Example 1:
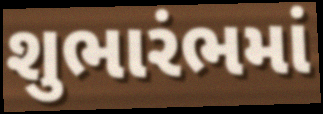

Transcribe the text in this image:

શુભારંભમાં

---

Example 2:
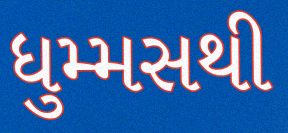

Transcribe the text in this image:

ધુમ્મસથી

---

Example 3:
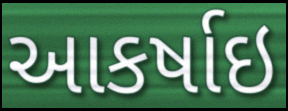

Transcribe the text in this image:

આકર્ષાઇ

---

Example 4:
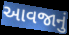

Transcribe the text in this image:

આવજાનું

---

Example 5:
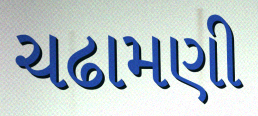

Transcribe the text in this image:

ચઢામણી